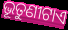
ଭୂତୁଣୀଟାଏ